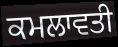
ਕਮਲਾਵਤੀ